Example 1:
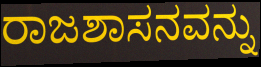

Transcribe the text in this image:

ರಾಜಶಾಸನವನ್ನು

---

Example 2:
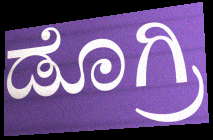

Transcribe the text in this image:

ಡೊಗ್ರಿ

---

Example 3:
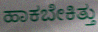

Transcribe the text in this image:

ಹಾಕಬೇಕಿತ್ತು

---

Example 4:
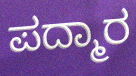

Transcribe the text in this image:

ಪದ್ಮಾರ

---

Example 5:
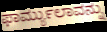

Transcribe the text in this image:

ಫಾರ್ಮ್ಯುಲಾವನ್ನು